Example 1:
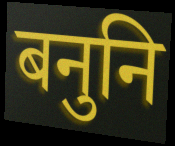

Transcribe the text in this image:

बनुनि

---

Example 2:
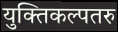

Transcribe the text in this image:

युक्तिकल्पतरु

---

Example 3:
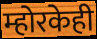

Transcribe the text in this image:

म्होरकेही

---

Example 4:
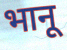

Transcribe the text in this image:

भानू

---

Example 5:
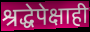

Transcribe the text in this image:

श्रद्धेपेक्षाही